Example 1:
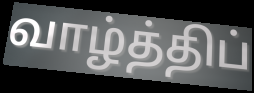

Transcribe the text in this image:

வாழ்த்திப்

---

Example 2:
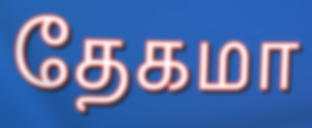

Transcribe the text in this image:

தேகமா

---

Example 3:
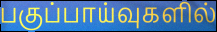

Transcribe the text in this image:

பகுப்பாய்வுகளில்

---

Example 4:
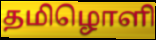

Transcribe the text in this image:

தமிழொளி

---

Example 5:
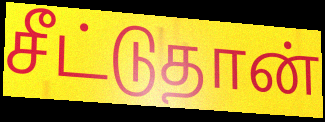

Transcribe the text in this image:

சீட்டுதான்